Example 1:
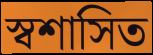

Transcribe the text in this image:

স্বশাসিত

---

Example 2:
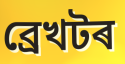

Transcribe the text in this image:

ব্ৰেখটৰ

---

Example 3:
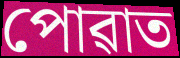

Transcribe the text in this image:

পোৱাত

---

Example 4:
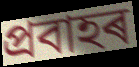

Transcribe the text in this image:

প্ৰবাহৰ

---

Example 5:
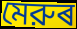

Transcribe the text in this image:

মেৰুৰ